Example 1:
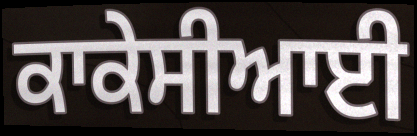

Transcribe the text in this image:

ਕਾਕੇਸੀਆਈ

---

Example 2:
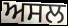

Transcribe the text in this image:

ਅਸਲ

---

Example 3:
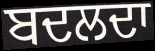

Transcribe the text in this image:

ਬਦਲਦਾ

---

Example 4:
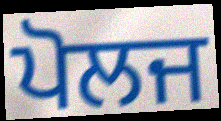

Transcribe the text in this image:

ਪੋਲਜ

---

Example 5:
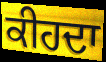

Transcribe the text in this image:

ਕੀਹਦਾ